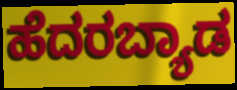
ಹೆದರಬ್ಯಾಡ